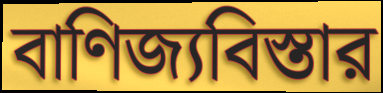
বাণিজ্যবিস্তার